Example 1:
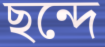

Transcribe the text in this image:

ছন্দে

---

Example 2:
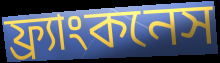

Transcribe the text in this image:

ফ্র্যাংকনেস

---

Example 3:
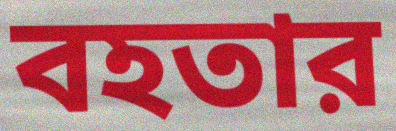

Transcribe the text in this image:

বহতার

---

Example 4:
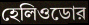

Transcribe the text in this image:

হেলিওডোর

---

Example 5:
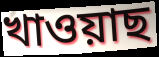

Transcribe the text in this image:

খাওয়াছ